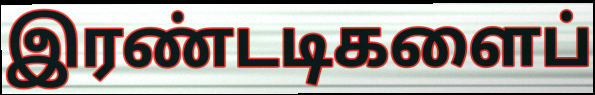
இரண்டடிகளைப்